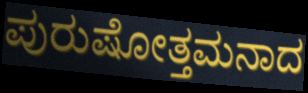
ಪುರುಷೋತ್ತಮನಾದ